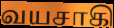
வயசாகி